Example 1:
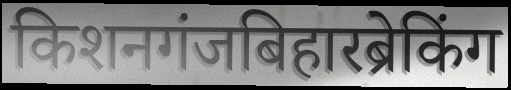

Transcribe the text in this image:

किशनगंजबिहारब्रेकिंग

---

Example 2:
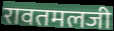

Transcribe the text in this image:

रावतमलजी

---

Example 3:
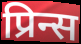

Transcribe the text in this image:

प्रिन्स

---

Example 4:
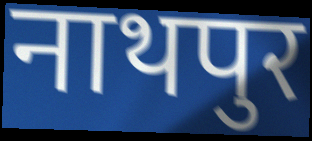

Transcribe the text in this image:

नाथपुर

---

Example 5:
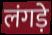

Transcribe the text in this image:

लंगड़े